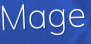
Mage